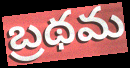
బ్రథమ